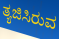
ತ್ಯಜಿಸಿರುವ